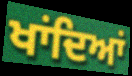
ਖਾਂਦਿਆਂ